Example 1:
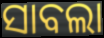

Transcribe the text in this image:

ସାବଲା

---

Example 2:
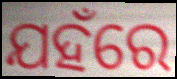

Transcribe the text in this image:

ଯହଁରେ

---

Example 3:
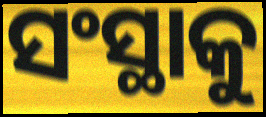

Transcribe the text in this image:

ସଂସ୍ଥାକୁ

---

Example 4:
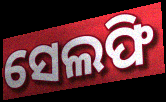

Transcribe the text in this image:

ସେଲଫି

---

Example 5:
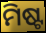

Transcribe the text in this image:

ମିଷ୍ଟ